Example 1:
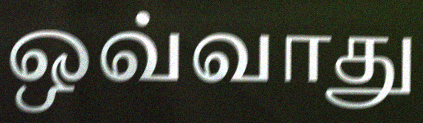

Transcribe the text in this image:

ஒவ்வாது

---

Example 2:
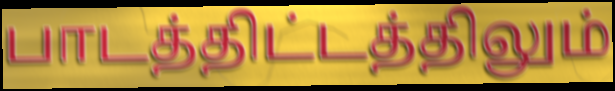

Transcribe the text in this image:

பாடத்திட்டத்திலும்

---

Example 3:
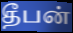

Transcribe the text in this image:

தீபன்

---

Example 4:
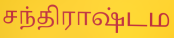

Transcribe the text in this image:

சந்திராஷ்டம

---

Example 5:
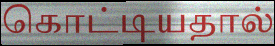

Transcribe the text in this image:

கொட்டியதால்